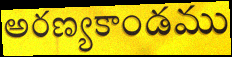
అరణ్యకాండము